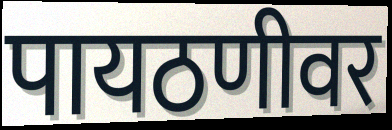
पायठणीवर